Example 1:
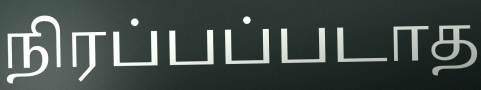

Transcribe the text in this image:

நிரப்பப்படாத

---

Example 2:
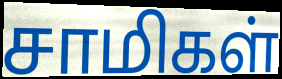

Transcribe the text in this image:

சாமிகள்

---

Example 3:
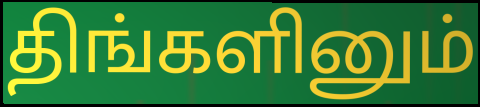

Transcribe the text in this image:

திங்களினும்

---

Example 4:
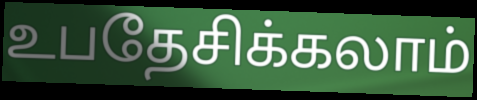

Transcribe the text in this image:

உபதேசிக்கலாம்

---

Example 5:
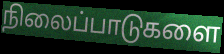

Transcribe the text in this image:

நிலைப்பாடுகளை